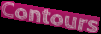
Contours